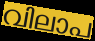
വിലാപ